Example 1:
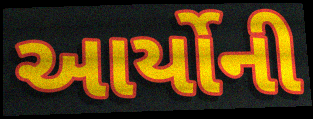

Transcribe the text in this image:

આર્યોની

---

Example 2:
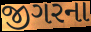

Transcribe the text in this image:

જીગરના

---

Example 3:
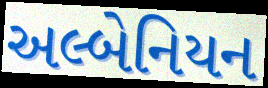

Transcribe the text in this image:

અલ્બેનિયન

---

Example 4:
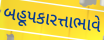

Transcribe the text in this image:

બહૂપકારત્તાભાવે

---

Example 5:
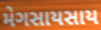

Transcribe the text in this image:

મેગસાયસાય